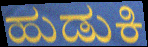
ಹುಡುಕಿ